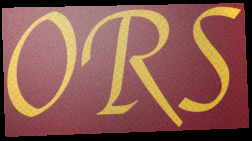
ORS